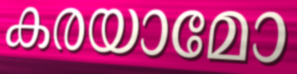
കരയാമോ